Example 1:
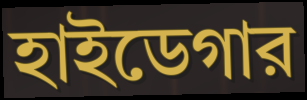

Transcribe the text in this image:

হাইডেগার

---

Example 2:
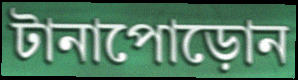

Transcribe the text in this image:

টানাপোড়োন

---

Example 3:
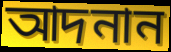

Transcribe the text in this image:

আদনান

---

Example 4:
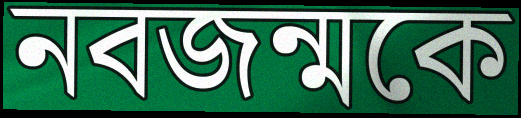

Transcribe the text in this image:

নবজন্মকে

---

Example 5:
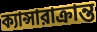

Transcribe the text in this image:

ক্যান্সারাক্রান্ত